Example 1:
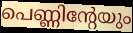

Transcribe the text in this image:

പെണ്ണിന്റേയും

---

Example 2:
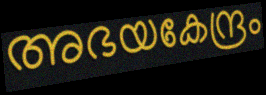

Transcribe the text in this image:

അഭയകേന്ദ്രം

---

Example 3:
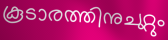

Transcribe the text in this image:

കൂടാരത്തിനുചുറ്റും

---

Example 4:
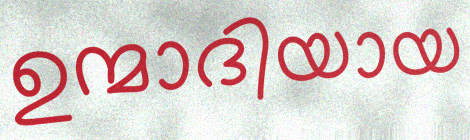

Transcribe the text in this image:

ഉന്മാദിയായ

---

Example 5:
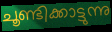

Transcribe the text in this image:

ചൂണ്ടിക്കാട്ടുന്നു